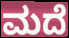
ಮದೆ